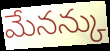
మేనన్కు